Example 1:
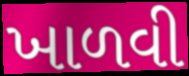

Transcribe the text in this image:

ખાળવી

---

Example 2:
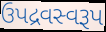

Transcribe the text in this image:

ઉપદ્રવસ્વરૂપ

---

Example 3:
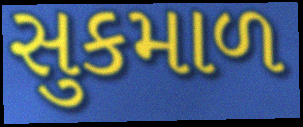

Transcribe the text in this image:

સુકમાળ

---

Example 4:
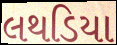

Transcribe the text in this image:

લથડિયા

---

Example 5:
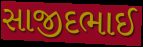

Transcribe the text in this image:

સાજીદભાઈ